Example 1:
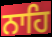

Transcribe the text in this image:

ਨਾਹਿ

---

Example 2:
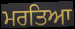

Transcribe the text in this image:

ਮਰਤਿਆ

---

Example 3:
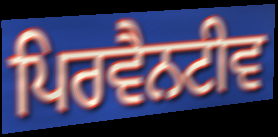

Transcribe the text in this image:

ਪਿਰਵੈਨਟੀਵ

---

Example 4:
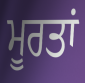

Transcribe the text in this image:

ਮੂਰਤਾਂ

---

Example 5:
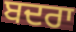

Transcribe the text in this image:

ਬਦਰਾ